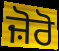
ਜ਼ੋਰੋ